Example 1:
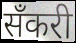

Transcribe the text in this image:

सँकरी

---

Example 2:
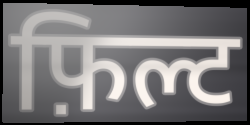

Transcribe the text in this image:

फ़िल्ट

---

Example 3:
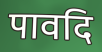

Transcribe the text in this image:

पावदि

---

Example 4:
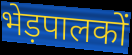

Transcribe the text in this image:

भेड़पालकों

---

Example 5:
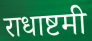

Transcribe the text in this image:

राधाष्टमी